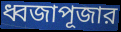
ধ্বজাপূজার